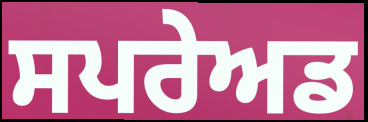
ਸਪਰੇਅਡ